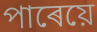
পাৰেয়ে